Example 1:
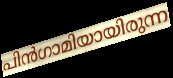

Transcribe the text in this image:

പിൻഗാമിയായിരുന്ന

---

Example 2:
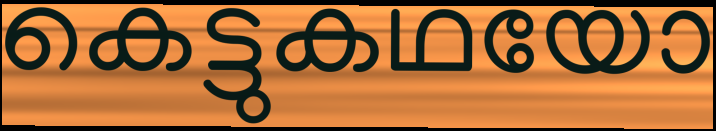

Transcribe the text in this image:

കെട്ടുകഥയോ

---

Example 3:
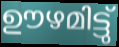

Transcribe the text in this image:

ഊഴമിട്ടു്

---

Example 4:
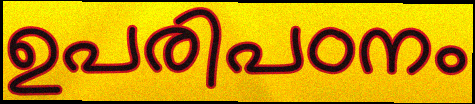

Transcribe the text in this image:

ഉപരിപഠനം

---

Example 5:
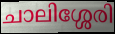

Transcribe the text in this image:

ചാലിശ്ശേരി